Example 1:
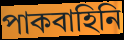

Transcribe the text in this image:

পাকবাহিনি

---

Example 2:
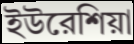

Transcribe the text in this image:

ইউরেশিয়া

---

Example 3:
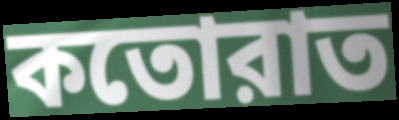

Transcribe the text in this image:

কতোরাত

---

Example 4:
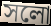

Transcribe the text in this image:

সলো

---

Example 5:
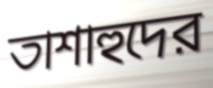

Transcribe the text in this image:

তাশাহুদের